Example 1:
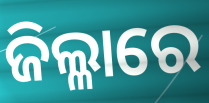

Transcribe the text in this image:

ଜିଲ୍ଳାରେ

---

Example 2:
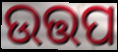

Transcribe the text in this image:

ଉତ୍ତପ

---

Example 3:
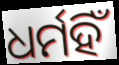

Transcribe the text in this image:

ଧର୍ମହିଁ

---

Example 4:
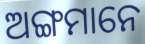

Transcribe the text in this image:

ଅଙ୍ଗମାନେ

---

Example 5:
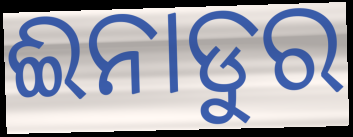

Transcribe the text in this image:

ଈନାଡୁର